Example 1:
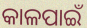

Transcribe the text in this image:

କାଳପାଇଁ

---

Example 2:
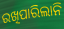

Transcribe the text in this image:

ରଖିପାରିଲାନି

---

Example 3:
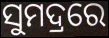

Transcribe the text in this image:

ସୁମଦ୍ରରେ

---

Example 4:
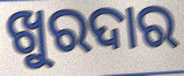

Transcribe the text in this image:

ଖୁରଦାର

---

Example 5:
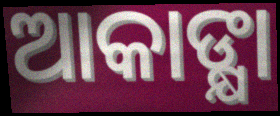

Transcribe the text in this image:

ଆକାଙ୍କ୍ଷା